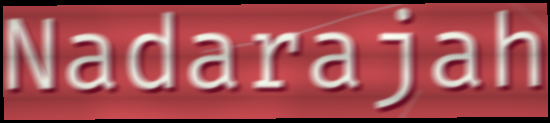
Nadarajah